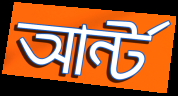
আর্ন্ট